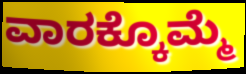
ವಾರಕ್ಕೊಮ್ಮೆ